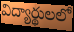
విద్యార్థులలో